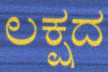
ಲಕ್ಷದ